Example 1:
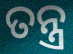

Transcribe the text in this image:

ତନ୍ତ୍ର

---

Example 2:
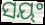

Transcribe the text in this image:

ସୟଂ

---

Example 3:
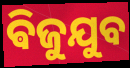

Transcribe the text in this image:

ଵିଜୁଯୁବ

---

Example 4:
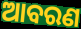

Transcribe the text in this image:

ଆବରଣ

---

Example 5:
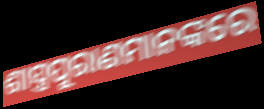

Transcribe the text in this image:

ଶାସ୍ତ୍ରପୁରାଣମାନଙ୍କରେ